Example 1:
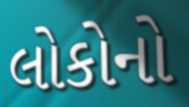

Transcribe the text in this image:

લોકોનો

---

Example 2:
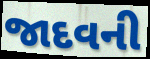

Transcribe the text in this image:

જાદવની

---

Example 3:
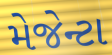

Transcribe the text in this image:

મેજેન્ટા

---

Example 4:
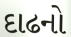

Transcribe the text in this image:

દાઢનો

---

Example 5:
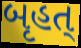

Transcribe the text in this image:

બૃહત્